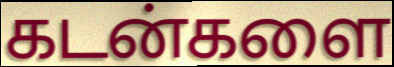
கடன்களை